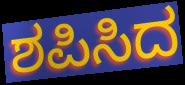
ಶಪಿಸಿದ